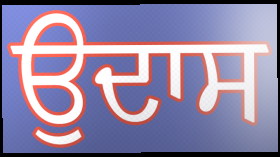
ਉਦਾਸ